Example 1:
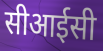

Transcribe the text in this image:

सीआईसी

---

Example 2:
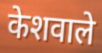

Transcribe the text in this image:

केशवाले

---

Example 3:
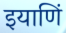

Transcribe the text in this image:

इयाणिं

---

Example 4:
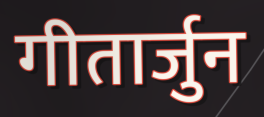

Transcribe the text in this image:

गीतार्जुन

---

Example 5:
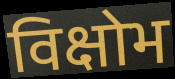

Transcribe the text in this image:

विक्षोभ